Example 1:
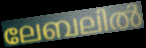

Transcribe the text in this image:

ലേബലിൽ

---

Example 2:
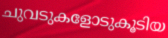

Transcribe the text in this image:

ചുവടുകളോടുകൂടിയ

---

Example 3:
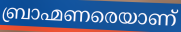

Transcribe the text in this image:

ബ്രാഹ്മണരെയാണ്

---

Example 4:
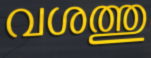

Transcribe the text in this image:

വശത്തു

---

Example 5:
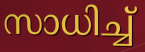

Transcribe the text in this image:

സാധിച്ച്